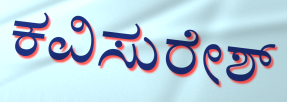
ಕವಿಸುರೇಶ್